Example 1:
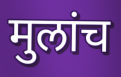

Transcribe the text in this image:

मुलांच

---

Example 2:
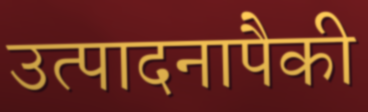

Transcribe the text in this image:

उत्पादनापैकी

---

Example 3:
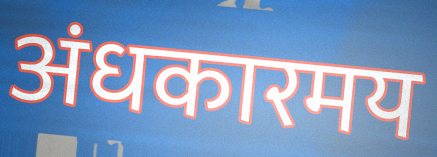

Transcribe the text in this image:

अंधकारमय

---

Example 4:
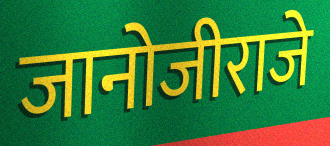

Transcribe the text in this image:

जानोजीराजे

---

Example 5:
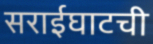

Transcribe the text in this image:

सराईघाटची